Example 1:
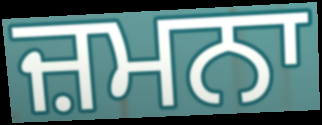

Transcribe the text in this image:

ਜ਼ਮਨਾ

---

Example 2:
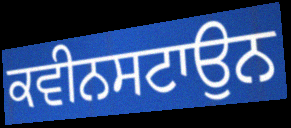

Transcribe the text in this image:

ਕਵੀਨਸਟਾਉਨ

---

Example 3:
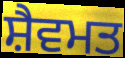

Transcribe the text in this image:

ਸ਼ੈਵਮਤ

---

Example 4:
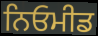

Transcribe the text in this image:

ਨਿਓਮੀਡ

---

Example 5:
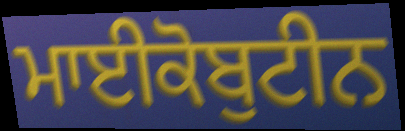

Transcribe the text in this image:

ਮਾਈਕੋਬੁਟੀਨ